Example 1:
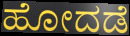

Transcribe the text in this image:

ಹೋದಡೆ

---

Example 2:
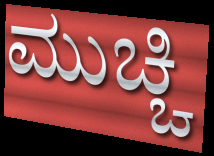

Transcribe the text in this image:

ಮುಚ್ಚಿ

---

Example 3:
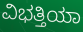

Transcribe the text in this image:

ವಿಭತ್ತಿಯಾ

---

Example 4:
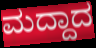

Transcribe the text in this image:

ಮದ್ದಾದ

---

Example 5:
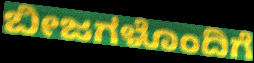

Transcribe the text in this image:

ಬೀಜಗಳೊಂದಿಗೆ